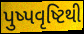
પુષ્પવૃષ્ટિથી